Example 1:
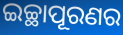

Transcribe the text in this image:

ଇଚ୍ଛାପୂରଣର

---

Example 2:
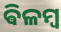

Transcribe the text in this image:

ଵିଳମ୍ବ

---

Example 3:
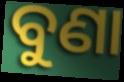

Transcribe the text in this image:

ବୁଣା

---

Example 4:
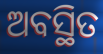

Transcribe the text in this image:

ଅବସ୍ଥିତ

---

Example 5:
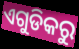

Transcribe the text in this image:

ଏଗୁଡିକରୁ